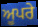
ਅੂਪਰੇ